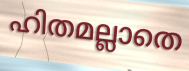
ഹിതമല്ലാതെ